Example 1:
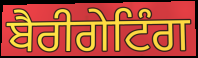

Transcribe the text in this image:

ਬੈਰੀਗੇਟਿੰਗ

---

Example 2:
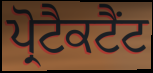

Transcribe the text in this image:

ਪ੍ਰੋਟੈਕਟੈਂਟ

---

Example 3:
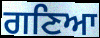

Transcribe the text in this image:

ਗਣਿਆ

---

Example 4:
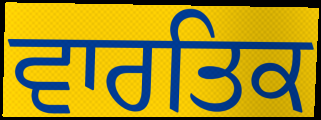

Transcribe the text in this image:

ਵਾਰਤਿਕ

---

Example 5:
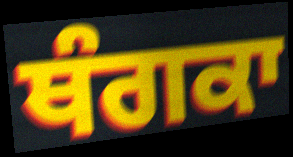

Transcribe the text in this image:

ਥੰਗਕਾ